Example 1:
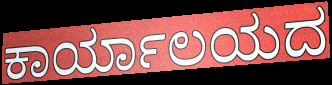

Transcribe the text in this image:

ಕಾರ್ಯಾಲಯದ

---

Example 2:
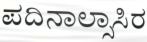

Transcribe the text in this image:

ಪದಿನಾಲ್ಸಾಸಿರ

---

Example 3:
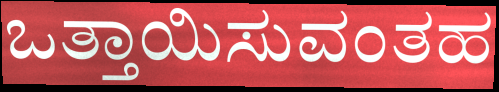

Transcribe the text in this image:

ಒತ್ತಾಯಿಸುವಂತಹ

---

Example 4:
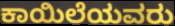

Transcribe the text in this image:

ಕಾಯಿಲೆಯವರು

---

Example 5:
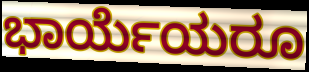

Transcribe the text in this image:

ಭಾರ್ಯೆಯರೂ